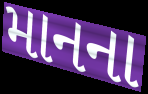
માનના